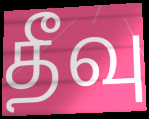
தீவு